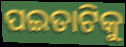
ପଇତାଟିକୁ